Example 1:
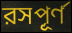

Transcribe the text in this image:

রসপূর্ণ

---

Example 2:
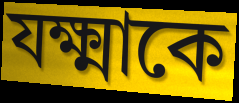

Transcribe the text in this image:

যক্ষ্মাকে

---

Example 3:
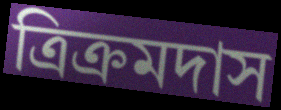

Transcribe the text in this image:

ত্রিক্রমদাস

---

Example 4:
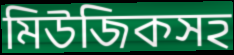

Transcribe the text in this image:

মিউজিকসহ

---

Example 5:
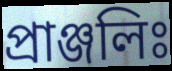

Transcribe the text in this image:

প্রাঞ্জলিঃ